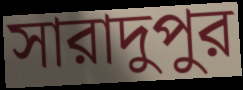
সারাদুপুর